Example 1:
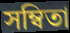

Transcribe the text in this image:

সম্বিতা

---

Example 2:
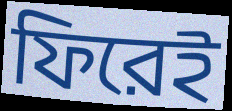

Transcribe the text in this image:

ফিরেই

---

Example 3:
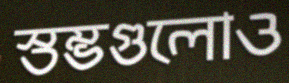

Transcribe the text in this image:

স্তম্ভগুলোও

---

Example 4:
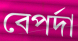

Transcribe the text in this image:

বেপর্দা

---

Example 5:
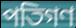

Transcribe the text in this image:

পতিগণ